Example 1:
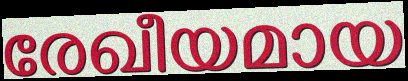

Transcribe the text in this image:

രേഖീയമായ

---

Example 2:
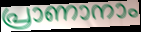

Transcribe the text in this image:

പ്രാണാനാം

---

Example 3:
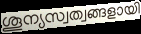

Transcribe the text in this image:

ശൂന്യസ്വത്വങ്ങളായി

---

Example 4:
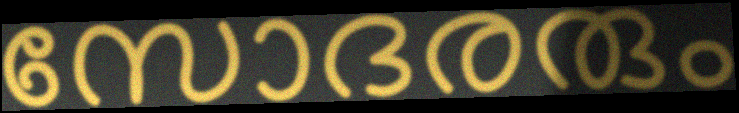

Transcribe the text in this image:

സോദരരും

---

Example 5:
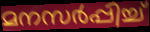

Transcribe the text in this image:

മനസർപ്പിച്ച്